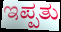
ಇಪ್ಪತು